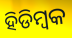
ହିଡିମ୍ବକ